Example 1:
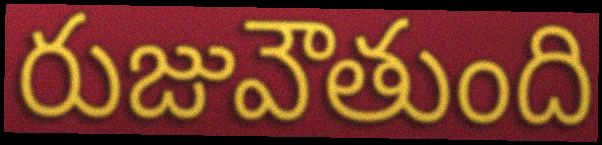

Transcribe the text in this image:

రుజువౌతుంది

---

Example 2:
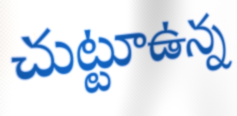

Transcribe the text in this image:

చుట్టూఉన్న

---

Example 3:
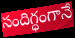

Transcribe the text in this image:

సందిగ్ధంగానే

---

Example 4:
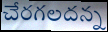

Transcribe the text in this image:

చేరగలదన్న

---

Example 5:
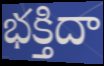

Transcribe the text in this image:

భక్తిదా